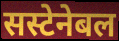
सस्टेनेबल